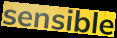
sensible